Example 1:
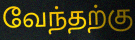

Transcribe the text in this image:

வேந்தற்கு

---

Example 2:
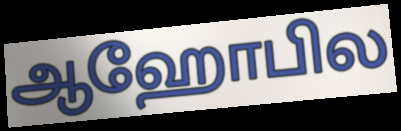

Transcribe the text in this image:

ஆஹோபில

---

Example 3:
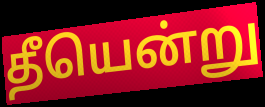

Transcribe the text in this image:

தீயென்று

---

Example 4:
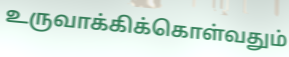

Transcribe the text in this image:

உருவாக்கிக்கொள்வதும்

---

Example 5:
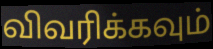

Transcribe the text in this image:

விவரிக்கவும்